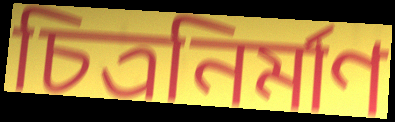
চিত্রনির্মাণ